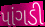
પાંગડી